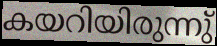
കയറിയിരുന്നു്